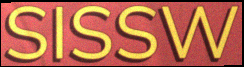
SISSW